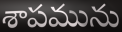
శాపమును